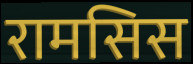
रामसिस